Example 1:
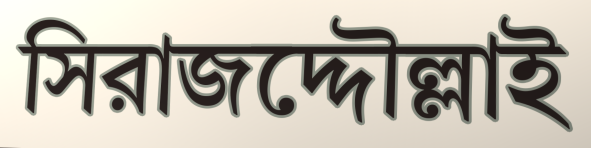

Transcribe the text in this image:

সিরাজদ্দৌল্লাই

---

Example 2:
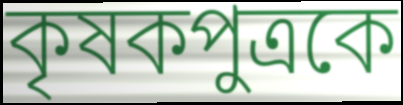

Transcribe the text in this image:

কৃষকপুত্রকে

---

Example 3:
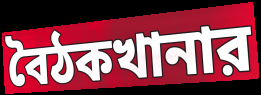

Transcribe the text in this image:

বৈঠকখানার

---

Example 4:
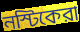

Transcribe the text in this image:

নস্টিকেরা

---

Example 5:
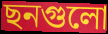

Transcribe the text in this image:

ছনগুলো